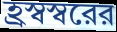
হ্রস্বস্বরের